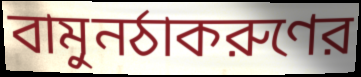
বামুনঠাকরুণের